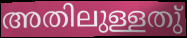
അതിലുള്ളതു്